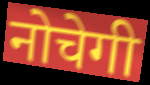
नोचेगी